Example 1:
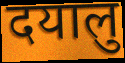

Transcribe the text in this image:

दयालु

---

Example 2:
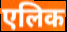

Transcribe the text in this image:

एलिक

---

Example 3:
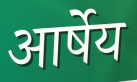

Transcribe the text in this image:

आर्षेय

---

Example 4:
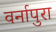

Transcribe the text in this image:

वर्नापुरा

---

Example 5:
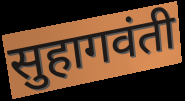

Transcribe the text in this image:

सुहागवंती